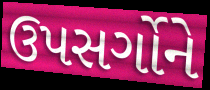
ઉપસર્ગોને